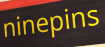
ninepins